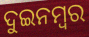
ଦୁଇନମ୍ୱର